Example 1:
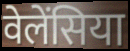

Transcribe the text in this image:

वेलेंसिया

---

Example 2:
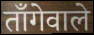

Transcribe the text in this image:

ताँगेवाले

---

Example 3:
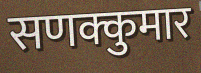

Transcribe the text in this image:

सणक्कुमार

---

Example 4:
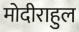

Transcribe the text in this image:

मोदीराहुल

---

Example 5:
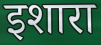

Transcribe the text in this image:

इशारा